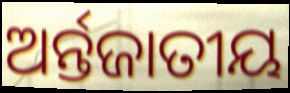
ଅର୍ନ୍ତଜାତୀୟ